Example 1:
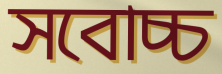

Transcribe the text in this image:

সবোচ্চ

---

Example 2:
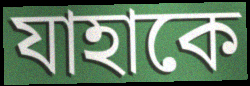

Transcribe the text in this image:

যাহাকে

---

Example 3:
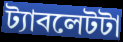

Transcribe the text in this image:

ট্যাবলেটটা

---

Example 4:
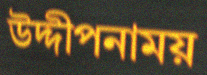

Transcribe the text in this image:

উদ্দীপনাময়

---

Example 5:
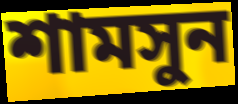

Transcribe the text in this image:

শামসুন